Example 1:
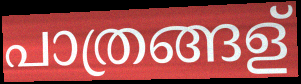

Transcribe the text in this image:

പാത്രങ്ങള്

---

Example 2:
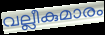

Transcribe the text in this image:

വല്ലീകുമാരം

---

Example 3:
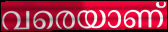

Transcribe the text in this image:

വരെയാണ്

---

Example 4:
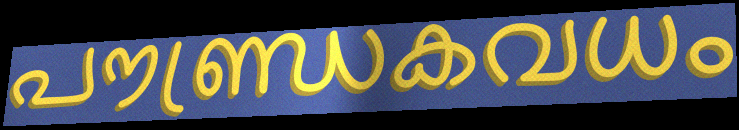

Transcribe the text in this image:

പൗണ്ഡ്രകവധം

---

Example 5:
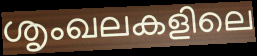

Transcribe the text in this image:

ശൃംഖലകളിലെ